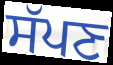
ਸੱਪਣ